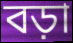
বড়া